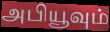
அபியூவும்